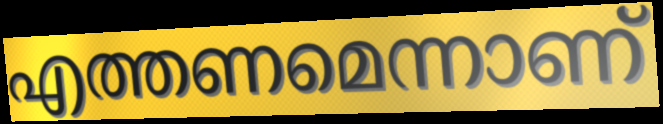
എത്തണമെന്നാണ്